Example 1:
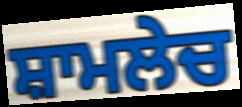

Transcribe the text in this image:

ਸ਼ਾਮਲੇਚ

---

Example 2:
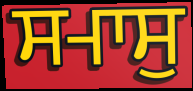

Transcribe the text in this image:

ਸ੍ਮਾਸੁ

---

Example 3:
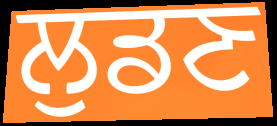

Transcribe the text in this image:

ਲੁਡਣ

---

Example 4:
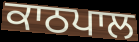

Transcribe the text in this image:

ਕਾਠਪਾਲ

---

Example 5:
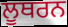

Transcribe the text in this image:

ਲੂਥਰਨ